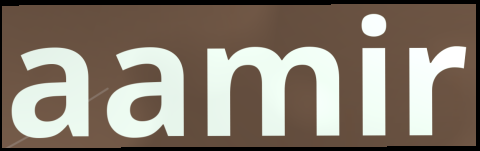
aamir